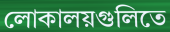
লোকালয়গুলিতে